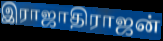
இராஜாதிராஜன்